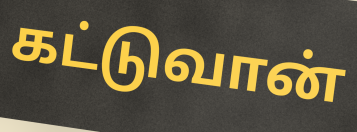
கட்டுவான்